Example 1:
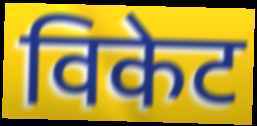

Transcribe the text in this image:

विकेट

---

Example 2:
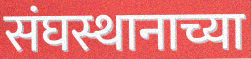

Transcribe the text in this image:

संघस्थानाच्या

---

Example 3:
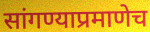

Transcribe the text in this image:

सांगण्याप्रमाणेच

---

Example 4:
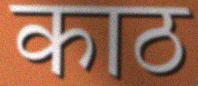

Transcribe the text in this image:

काठ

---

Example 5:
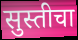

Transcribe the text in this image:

सुस्तीचा